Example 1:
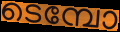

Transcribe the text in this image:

ടെമ്പോ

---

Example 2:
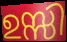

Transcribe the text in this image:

ഉസ്സി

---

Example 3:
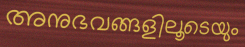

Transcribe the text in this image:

അനുഭവങ്ങളിലൂടെയും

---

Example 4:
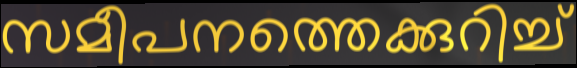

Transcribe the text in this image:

സമീപനത്തെക്കുറിച്ച്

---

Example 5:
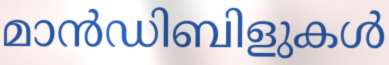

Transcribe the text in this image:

മാൻഡിബിളുകൾ